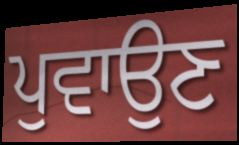
ਪੁਵਾਉਣ